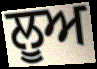
ਲੂਅ